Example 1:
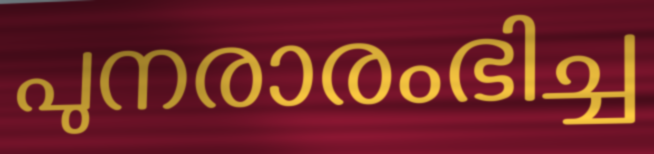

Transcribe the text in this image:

പുനരാരംഭിച്ച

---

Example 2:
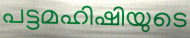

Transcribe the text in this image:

പട്ടമഹിഷിയുടെ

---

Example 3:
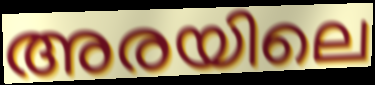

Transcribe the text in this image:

അരയിലെ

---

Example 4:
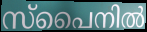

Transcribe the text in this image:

സ്പൈനിൽ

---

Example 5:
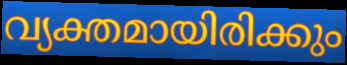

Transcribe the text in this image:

വ്യക്തമായിരിക്കും